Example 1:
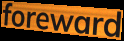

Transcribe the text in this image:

foreward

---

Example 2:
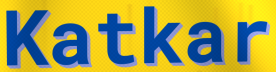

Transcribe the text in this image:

Katkar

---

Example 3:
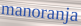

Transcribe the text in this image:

manoranja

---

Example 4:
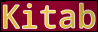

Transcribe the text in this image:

Kitab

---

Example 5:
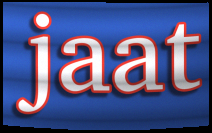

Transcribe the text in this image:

jaat